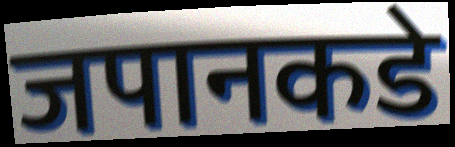
जपानकडे